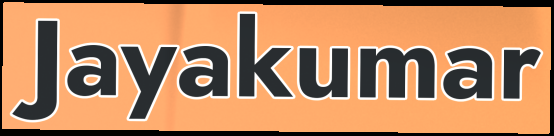
Jayakumar